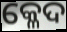
କ୍ଳେଦ